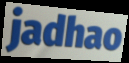
jadhao